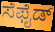
ಸೆಫೈಡ್